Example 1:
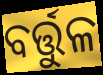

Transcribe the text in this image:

ବର୍ତ୍ତୁଳ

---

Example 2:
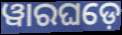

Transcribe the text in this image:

ୱାରଘଡ଼େ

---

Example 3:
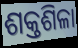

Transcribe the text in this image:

ଶକ୍ତଶିଳା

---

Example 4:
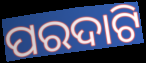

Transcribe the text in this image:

ପରଦାଟି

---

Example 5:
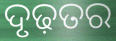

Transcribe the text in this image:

ଦୃଢ଼ତର